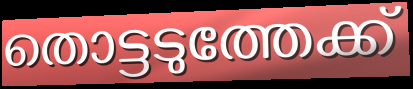
തൊട്ടടുത്തേക്ക്